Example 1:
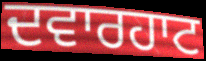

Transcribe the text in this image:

ਦਵਾਰਹਾਟ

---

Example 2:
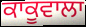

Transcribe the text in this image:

ਕਾਕੂਵਾਲਾ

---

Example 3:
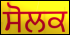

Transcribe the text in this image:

ਸੋਲਕ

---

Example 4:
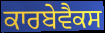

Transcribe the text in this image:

ਕਾਰਬੇਵੈਕਸ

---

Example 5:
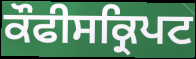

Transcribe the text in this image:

ਕੌਫੀਸਕ੍ਰਿਪਟ